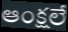
ఆంక్షలే